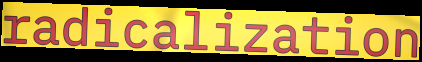
radicalization